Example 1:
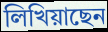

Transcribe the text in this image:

লিখিয়াছেন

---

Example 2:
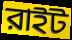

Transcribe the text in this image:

রাইট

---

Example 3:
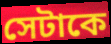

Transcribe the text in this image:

সেটাকে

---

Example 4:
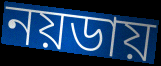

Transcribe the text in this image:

নয়ডায়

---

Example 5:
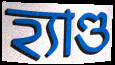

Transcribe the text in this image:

হ্যাণ্ড